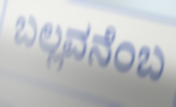
ಬಲ್ಲವನೆಂಬ